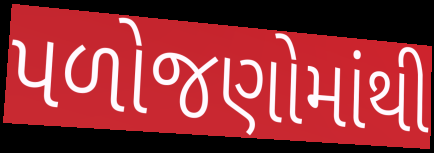
પળોજણોમાંથી